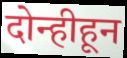
दोन्हीहून